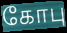
கோபு